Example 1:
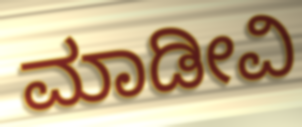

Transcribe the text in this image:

ಮಾಡೀವಿ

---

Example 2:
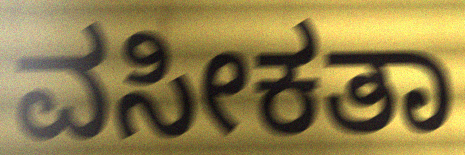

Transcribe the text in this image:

ವಸೀಕತಾ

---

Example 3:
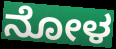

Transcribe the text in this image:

ನೋಳ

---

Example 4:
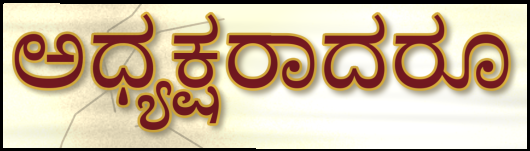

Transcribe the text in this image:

ಅಧ್ಯಕ್ಷರಾದರೂ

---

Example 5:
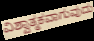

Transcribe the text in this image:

ವಿಶ್ವಾತ್ಮಕವಾಗುವುದು